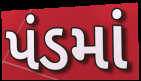
પંડમાં